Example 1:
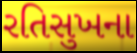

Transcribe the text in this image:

રતિસુખના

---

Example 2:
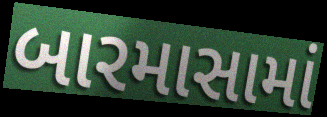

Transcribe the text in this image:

બારમાસામાં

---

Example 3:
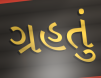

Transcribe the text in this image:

ગ્રહતું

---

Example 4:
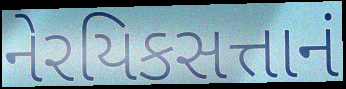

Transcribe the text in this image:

નેરયિકસત્તાનં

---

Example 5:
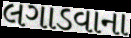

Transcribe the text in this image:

લગાડવાના